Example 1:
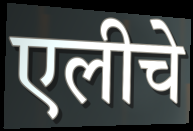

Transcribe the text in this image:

एलीचे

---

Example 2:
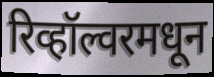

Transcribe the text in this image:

रिव्हॉल्वरमधून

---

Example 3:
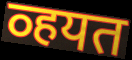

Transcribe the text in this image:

व्हयत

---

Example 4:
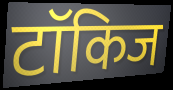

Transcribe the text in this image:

टॉकिज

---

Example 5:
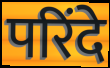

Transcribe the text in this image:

परिंदे